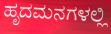
ಹೃದಮನಗಳಲ್ಲಿ